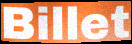
Billet